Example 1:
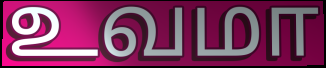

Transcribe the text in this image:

உவமா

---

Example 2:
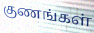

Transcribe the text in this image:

குணங்கள்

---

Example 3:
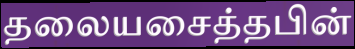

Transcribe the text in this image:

தலையசைத்தபின்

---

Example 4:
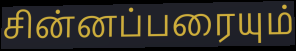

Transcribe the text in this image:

சின்னப்பரையும்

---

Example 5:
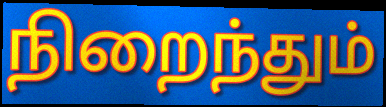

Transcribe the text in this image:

நிறைந்தும்